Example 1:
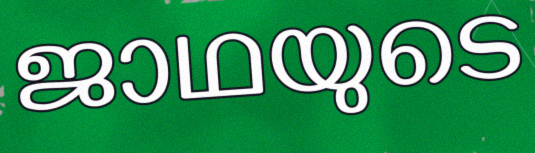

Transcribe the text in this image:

ജാഥയുടെ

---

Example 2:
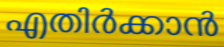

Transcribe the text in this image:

എതിർക്കാൻ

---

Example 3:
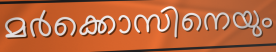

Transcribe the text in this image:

മർക്കൊസിനെയും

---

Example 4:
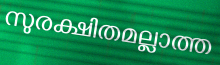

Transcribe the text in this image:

സുരക്ഷിതമല്ലാത്ത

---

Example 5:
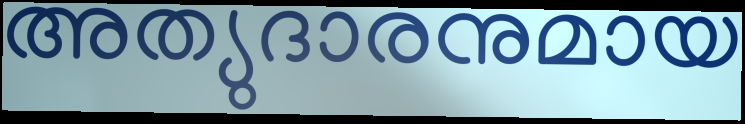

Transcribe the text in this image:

അത്യുദാരനുമായ